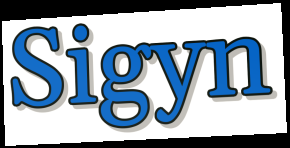
Sigyn